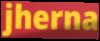
jherna